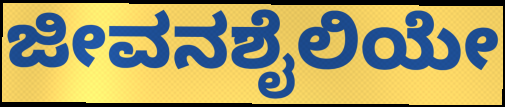
ಜೀವನಶೈಲಿಯೇ